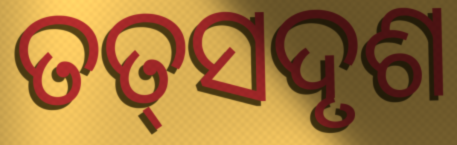
ତତ୍‌ସଦୃଶ